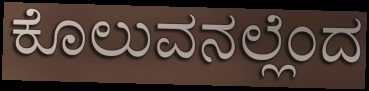
ಕೊಲುವನಲ್ಲೆಂದ